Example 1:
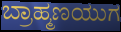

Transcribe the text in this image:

ಬ್ರಾಹ್ಮಣಯುಗ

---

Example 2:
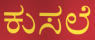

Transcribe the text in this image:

ಕುಸಲೆ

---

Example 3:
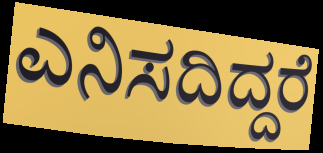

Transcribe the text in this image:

ಎನಿಸದಿದ್ದರೆ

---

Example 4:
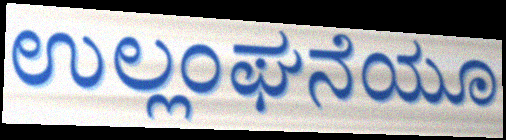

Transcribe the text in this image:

ಉಲ್ಲಂಘನೆಯೂ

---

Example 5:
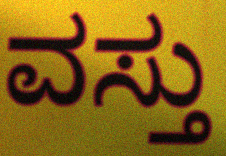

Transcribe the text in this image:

ವಸ್ತು